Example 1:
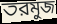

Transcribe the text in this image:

তরমুজ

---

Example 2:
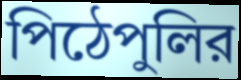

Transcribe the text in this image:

পিঠেপুলির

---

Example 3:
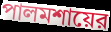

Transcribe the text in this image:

পালমশায়ের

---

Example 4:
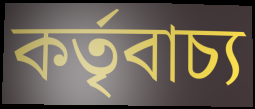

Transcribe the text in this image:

কর্তৃবাচ্য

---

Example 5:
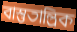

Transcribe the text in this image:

বাস্তুতান্ত্রিক